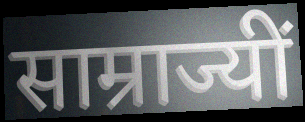
साम्राज्यीं